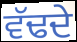
ਵੱਢਦੇ